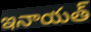
ఇనాయత్